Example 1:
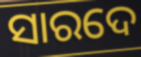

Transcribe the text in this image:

ସାରଦେ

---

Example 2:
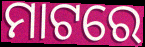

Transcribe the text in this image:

ମାଟରେ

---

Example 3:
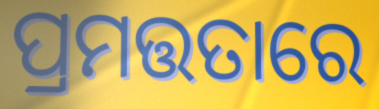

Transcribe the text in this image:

ପ୍ରମତ୍ତତାରେ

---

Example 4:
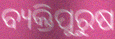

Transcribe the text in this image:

ବ୍ୟକ୍ତିପୁରୁଷ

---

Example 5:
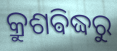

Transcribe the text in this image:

କ୍ରୁଶଵିଦ୍ଧରୁ